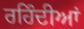
ਰਹਿੰਦੀਆਂ